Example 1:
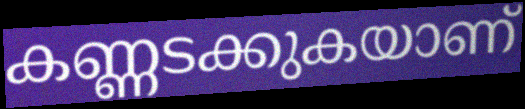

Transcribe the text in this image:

കണ്ണടക്കുകയാണ്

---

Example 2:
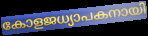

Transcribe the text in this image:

കോളജധ്യാപകനായി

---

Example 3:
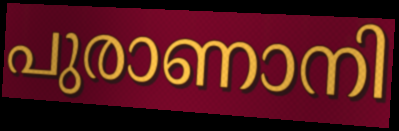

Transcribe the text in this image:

പുരാണാനി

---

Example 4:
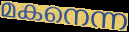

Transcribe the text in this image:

മകനെന്ന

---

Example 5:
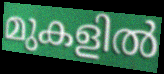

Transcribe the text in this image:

മുകളിൽ